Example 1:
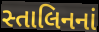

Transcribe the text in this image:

સ્તાલિનનાં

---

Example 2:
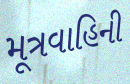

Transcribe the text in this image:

મૂત્રવાહિની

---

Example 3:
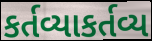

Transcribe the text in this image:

કર્તવ્યાકર્તવ્ય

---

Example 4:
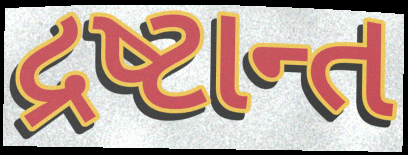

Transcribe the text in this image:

દ્રષ્ટાન્ત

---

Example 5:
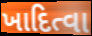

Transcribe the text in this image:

ખાદિત્વા